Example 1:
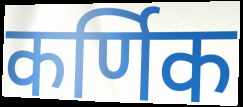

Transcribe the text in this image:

कर्णिक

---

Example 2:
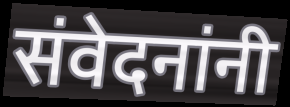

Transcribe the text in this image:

संवेदनांनी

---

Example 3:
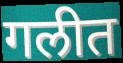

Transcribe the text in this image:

गलीत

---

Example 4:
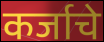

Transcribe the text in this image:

कर्जाचे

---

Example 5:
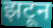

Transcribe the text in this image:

झटून